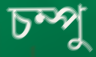
চম্পু